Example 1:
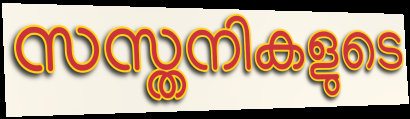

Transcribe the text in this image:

സസ്തനികളുടെ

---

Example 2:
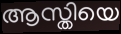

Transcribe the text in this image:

ആസ്തിയെ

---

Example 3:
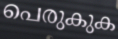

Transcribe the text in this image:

പെരുകുക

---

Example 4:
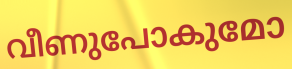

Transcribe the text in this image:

വീണുപോകുമോ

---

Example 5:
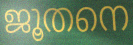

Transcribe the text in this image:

ജൂതനെ